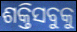
ଶକ୍ତିସବୁକୁ